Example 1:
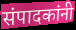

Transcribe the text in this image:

संपादकांनी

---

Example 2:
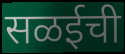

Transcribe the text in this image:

सळईची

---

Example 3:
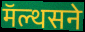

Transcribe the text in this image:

मॅल्थसने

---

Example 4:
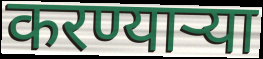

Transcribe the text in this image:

करण्यार्‍या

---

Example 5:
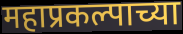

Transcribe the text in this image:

महाप्रकल्पाच्या